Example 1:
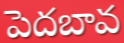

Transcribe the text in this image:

పెదబావ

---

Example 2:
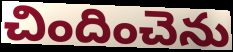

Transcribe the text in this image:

చిందించెను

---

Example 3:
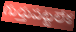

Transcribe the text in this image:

గుర్తుపట్టలేక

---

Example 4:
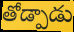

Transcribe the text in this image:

తోడ్పాడు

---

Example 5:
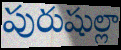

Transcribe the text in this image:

పురుషుల్లా